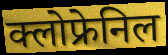
क्लोफ्रेनिल